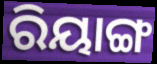
ରିୟାଙ୍ଗ